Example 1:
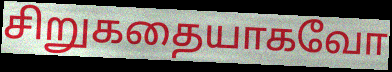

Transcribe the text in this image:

சிறுகதையாகவோ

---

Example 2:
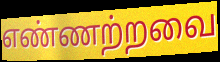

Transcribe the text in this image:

எண்ணற்றவை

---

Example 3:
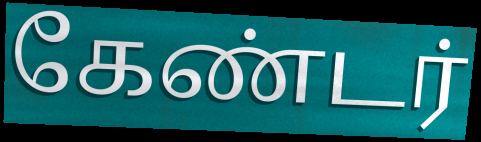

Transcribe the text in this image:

கேண்டர்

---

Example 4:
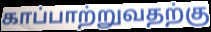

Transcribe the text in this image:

காப்பாற்றுவதற்கு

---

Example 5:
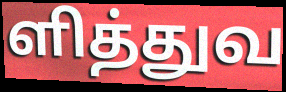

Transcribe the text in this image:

ளித்துவ